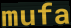
mufa